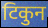
टिकुन